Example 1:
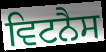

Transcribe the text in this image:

ਵਿਟਨੈਸ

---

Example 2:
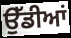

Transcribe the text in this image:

ਉੱਡੀਆਂ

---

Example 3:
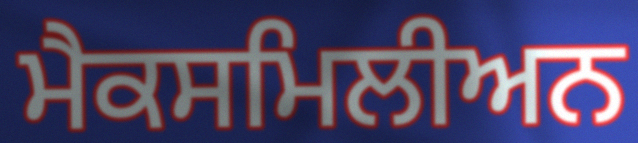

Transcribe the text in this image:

ਮੈਕਸਮਿਲੀਅਨ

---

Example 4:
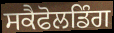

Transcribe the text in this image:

ਸਕੈਫੋਲਡਿੰਗ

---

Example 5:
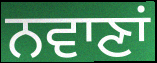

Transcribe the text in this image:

ਨਵਾਣਾਂ